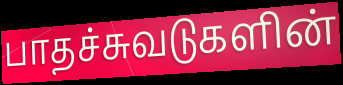
பாதச்சுவடுகளின்